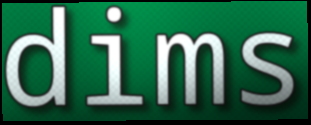
dims